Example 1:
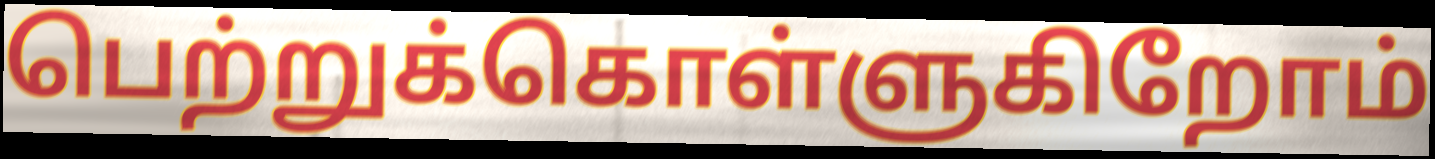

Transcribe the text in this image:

பெற்றுக்கொள்ளுகிறோம்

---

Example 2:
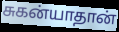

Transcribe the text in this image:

சுகன்யாதான்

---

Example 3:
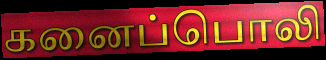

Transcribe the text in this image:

கனைப்பொலி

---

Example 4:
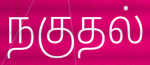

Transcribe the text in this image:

நகுதல்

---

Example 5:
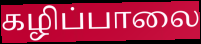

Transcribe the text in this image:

கழிப்பாலை